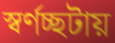
স্বর্ণচ্ছটায়